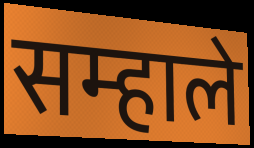
सम्हाले